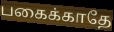
பகைக்காதே